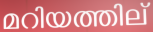
മറിയത്തില്